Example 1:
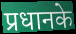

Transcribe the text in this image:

प्रधानके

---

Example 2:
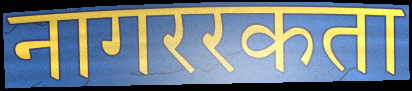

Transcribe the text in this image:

नागररकता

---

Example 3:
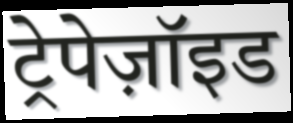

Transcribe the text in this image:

ट्रेपेज़ॉइड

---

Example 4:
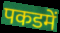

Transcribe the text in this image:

पकडमें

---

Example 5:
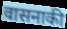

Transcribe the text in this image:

वासनाकी